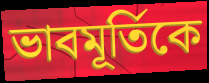
ভাবমূর্তিকে